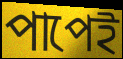
পাপেই